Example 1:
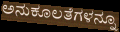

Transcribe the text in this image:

ಅನುಕೂಲತೆಗಳನ್ನೂ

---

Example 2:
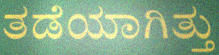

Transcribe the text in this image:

ತಡೆಯಾಗಿತ್ತು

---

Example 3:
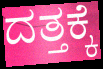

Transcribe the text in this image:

ದತ್ತಕ್ಕೆ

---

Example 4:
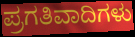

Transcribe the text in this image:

ಪ್ರಗತಿವಾದಿಗಳು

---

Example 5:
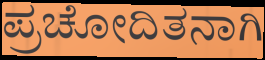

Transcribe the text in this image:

ಪ್ರಚೋದಿತನಾಗಿ